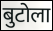
बुटोला